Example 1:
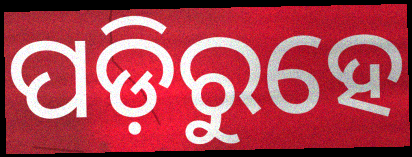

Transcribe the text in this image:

ପଡ଼ିରୁହେ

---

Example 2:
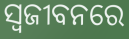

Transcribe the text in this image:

ସ୍ଵଜୀବନରେ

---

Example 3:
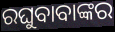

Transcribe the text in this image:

ରଘୁବାବାଙ୍କର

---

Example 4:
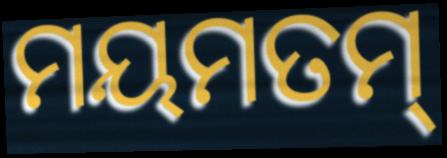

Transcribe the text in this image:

ମୟମତମ୍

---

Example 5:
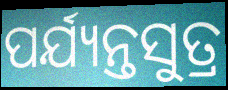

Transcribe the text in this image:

ପର୍ଯ୍ୟନ୍ତସୁତ୍ର